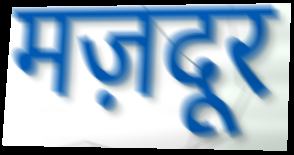
मज़दूर